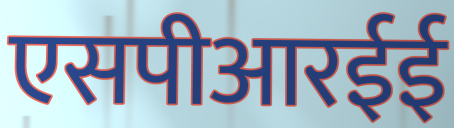
एसपीआरईई